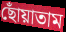
ছোঁয়াতাম